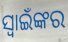
ସ୍ଵାଇଁଙ୍କର